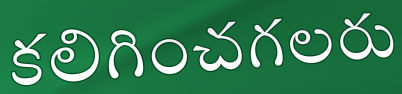
కలిగించగలరు